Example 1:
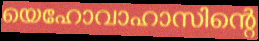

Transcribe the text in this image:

യെഹോവാഹാസിന്റെ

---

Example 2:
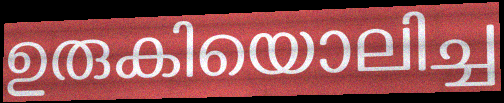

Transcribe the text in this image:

ഉരുകിയൊലിച്ച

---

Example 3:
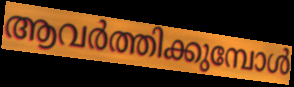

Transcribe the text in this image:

ആവർത്തിക്കുമ്പോൾ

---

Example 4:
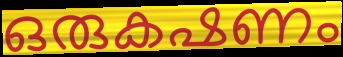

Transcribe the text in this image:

ഒരുകഷണം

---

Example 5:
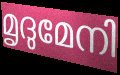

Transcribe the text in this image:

മൃദുമേനി